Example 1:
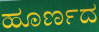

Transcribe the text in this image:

ಹೂರ್ಣದ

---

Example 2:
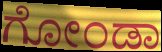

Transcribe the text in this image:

ಗೋಂಡಾ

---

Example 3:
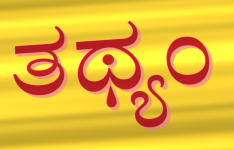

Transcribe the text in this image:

ತಥ್ಯಂ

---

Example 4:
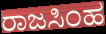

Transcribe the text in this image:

ರಾಜಸಿಂಹ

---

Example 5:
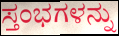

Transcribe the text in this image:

ಸ್ತಂಭಗಳನ್ನು